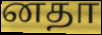
னதா